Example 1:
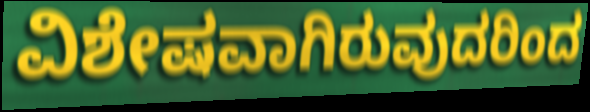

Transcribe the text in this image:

ವಿಶೇಷವಾಗಿರುವುದರಿಂದ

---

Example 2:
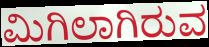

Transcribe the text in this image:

ಮಿಗಿಲಾಗಿರುವ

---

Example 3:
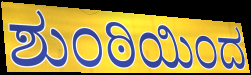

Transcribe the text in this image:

ಶುಂಠಿಯಿಂದ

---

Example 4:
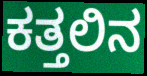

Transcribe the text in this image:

ಕತ್ತಲಿನ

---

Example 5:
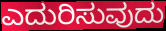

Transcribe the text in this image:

ಎದುರಿಸುವುದು